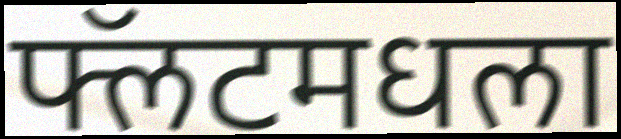
फ्लॅटमधला